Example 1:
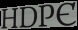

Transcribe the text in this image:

HDPE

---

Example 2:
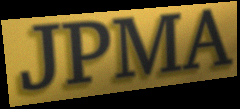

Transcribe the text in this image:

JPMA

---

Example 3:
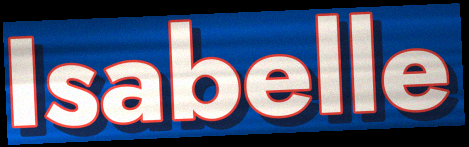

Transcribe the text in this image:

Isabelle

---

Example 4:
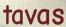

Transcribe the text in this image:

tavas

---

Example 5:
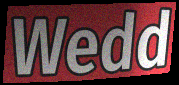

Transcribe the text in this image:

Wedd